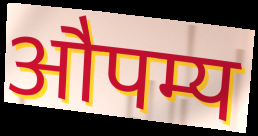
औपम्य